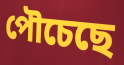
পৌচেছে